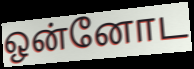
ஒன்னோட